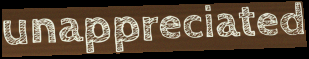
unappreciated